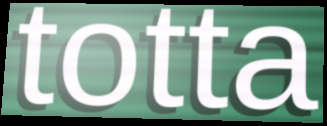
totta